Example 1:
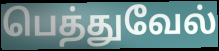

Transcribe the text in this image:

பெத்துவேல்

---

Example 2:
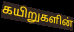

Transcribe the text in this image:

கயிறுகளின்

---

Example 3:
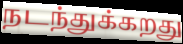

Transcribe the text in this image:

நடந்துக்கறது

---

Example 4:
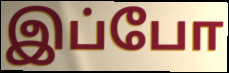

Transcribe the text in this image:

இப்போ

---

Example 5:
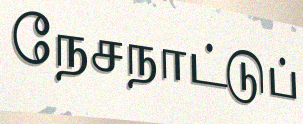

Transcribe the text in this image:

நேசநாட்டுப்